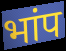
भांप